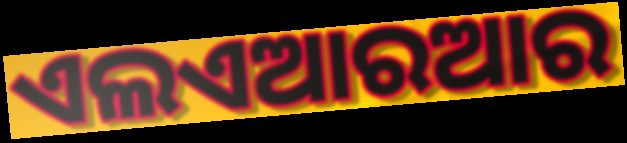
ଏଲଏଆରଆର